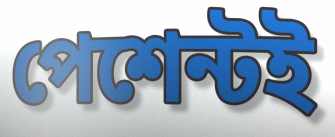
পেশেন্টই